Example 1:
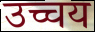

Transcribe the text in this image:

उच्चय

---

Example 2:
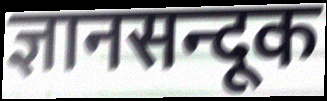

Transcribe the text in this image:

ज्ञानसन्दूक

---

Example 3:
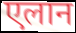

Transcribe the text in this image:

एलान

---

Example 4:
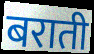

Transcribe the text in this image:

बराती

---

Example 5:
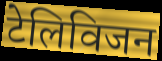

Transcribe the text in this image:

टेलिविजन